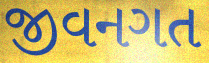
જીવનગત